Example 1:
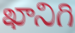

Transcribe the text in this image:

ఖానిగి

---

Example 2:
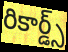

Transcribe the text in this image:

రికార్డ్స్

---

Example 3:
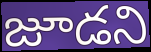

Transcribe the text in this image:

జూడని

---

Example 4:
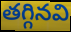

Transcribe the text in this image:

తగ్గినవి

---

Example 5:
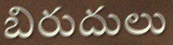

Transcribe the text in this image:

బిరుదులు